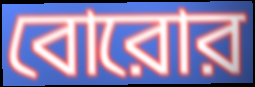
বোরোর